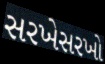
સરખેસરખો